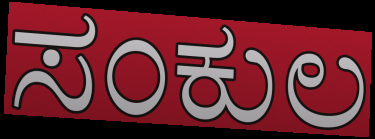
ಸಂಕುಲ